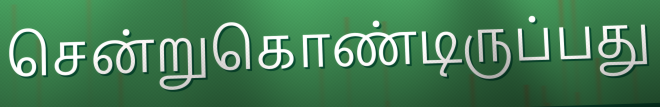
சென்றுகொண்டிருப்பது